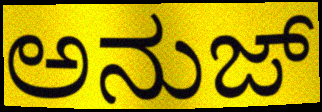
ಅನುಜ್